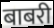
बाबरी